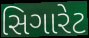
સિગારેટ